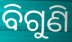
ବିଗୁଣି